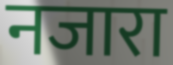
नजारा